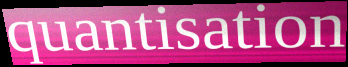
quantisation